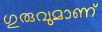
ഗുരുവുമാണ്